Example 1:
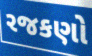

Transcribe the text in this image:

રજકણો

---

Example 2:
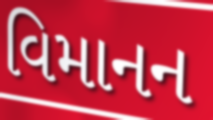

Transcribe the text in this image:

વિમાનન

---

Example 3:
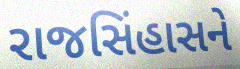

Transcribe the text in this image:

રાજસિંહાસને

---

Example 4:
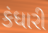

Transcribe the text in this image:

કંધારી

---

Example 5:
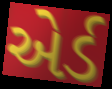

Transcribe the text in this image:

એર્ડ